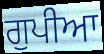
ਗੁਪੀਆ